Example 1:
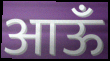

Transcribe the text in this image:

आऊँ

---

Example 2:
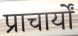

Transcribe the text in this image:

प्राचार्यों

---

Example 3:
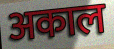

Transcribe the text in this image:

अकाल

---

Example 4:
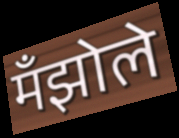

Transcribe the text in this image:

मँझोले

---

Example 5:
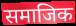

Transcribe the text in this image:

समाजिक